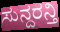
ಸುನ್ದರನ್ತಿ